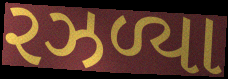
રઝળ્યા